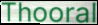
Thooral